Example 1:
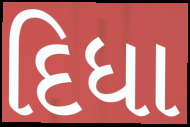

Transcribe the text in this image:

દિધા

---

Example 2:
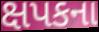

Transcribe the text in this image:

ક્ષપકના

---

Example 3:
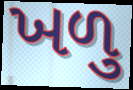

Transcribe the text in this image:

ખળુ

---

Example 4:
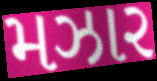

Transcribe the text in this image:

મઝાર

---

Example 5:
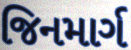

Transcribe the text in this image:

જિનમાર્ગ